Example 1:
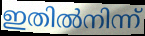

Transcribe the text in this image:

ഇതിൽനിന്ന്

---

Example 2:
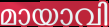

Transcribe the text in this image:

മായാവി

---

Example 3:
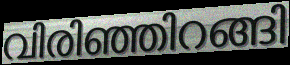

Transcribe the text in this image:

വിരിഞ്ഞിറങ്ങി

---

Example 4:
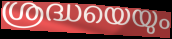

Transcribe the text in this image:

ശ്രദ്ധയെയും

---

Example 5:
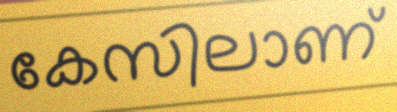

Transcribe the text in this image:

കേസിലാണ്